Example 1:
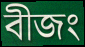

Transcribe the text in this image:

বীজং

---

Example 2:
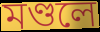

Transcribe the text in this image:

মণ্ডলে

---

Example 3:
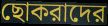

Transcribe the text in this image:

ছোকরাদের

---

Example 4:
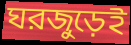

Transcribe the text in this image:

ঘরজুড়েই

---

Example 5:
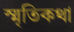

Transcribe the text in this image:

স্মৃতিকথা